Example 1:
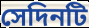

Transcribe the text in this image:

সেদিনটি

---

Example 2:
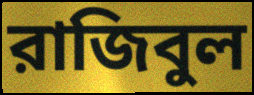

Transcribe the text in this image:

রাজিবুল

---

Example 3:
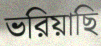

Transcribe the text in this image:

ভরিয়াছি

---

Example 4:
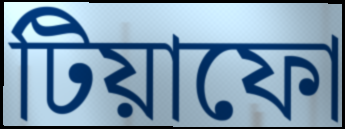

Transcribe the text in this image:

টিয়াফো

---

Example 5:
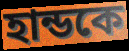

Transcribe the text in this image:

হান্ডকে